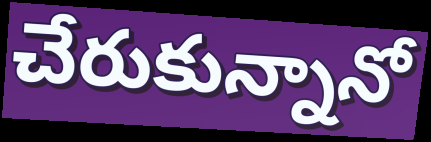
చేరుకున్నానో